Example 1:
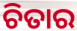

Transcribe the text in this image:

ଚିତାର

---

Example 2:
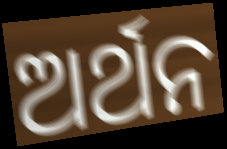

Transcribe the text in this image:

ଅର୍ଥନ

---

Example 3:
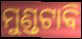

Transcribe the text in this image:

ମୁଣ୍ଡଟାବି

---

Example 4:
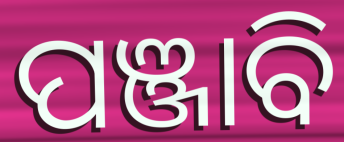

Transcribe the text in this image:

ପଞ୍ଜାବି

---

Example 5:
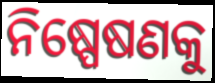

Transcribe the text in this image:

ନିଷ୍ପେଷଣକୁ